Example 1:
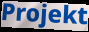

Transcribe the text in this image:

Projekt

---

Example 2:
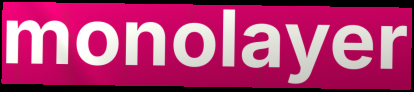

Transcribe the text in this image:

monolayer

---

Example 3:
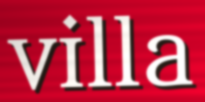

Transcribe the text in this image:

villa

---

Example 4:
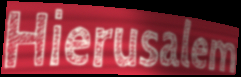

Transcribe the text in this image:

Hierusalem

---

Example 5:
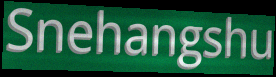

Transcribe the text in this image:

Snehangshu